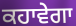
ਕਹਾਵੇਗਾ